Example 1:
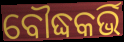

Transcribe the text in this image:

ବୌଦ୍ଧକର୍ଭି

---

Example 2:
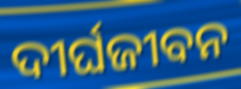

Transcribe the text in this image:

ଦୀର୍ଘଜୀବନ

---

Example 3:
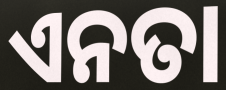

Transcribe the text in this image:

ଏନତା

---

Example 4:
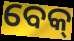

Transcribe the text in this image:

ବେକ୍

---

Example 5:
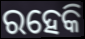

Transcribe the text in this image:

ରହେକି